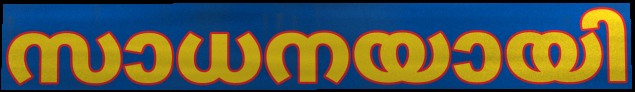
സാധനയായി